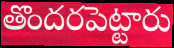
తొందరపెట్టారు